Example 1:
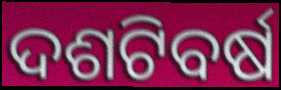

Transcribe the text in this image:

ଦଶଟିବର୍ଷ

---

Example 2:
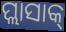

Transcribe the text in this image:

ପ୍ଲାସାକ୍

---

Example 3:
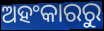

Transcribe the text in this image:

ଅହଂକାରରୁ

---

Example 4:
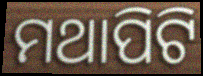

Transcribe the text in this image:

ମଥାପିଟି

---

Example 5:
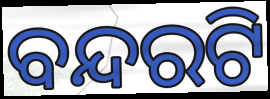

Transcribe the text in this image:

ବନ୍ଦରଟି